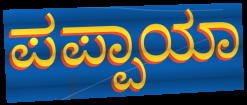
ಪಪ್ಪಾಯಾ